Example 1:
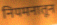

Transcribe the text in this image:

नियमनातून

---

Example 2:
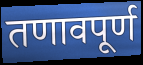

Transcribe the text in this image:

तणावपूर्ण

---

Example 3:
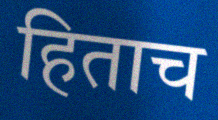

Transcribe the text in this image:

हिताच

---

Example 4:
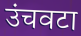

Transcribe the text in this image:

उंचवटा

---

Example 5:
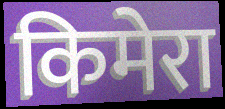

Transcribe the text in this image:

किमेरा